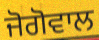
ਜੋਗੋਵਾਲ